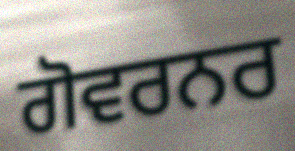
ਗੋਵਰਨਰ